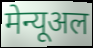
मेन्यूअल